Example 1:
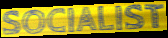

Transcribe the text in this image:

SOCIALIST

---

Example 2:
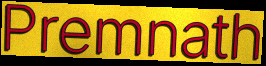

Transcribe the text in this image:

Premnath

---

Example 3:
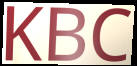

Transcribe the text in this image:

KBC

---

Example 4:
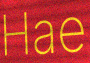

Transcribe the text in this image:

Hae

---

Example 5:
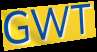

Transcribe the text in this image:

GWT